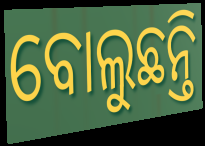
ବୋଲୁଛନ୍ତି